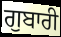
ਗੁਬਾਰੀ